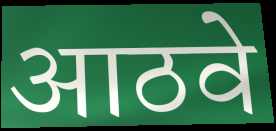
आठवे